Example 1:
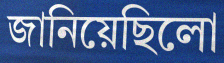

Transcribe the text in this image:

জানিয়েছিলো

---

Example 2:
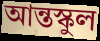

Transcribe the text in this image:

আন্তস্কুল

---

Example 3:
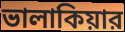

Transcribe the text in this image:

ভালাকিয়ার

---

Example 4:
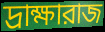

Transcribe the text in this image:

দ্রাক্ষারাজ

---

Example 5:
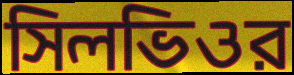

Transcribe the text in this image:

সিলভিওর